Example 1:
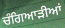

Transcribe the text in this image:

ਚੰਗਿਆੜੀਆਂ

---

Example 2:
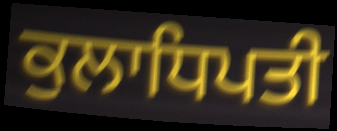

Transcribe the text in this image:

ਕੁਲਾਧਿਪਤੀ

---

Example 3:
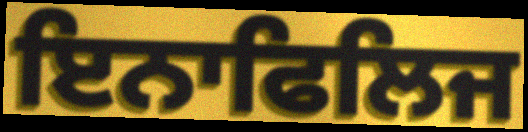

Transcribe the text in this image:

ਇਨਾਫਿਲਿਜ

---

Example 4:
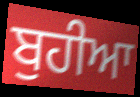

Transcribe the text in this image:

ਬੁਹੀਆ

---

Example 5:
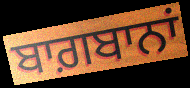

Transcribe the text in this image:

ਬਾਗ਼ਬਾਨਾਂ